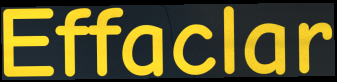
Effaclar